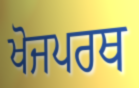
ਖੋਜਪਰਥ